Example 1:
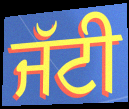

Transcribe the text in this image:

ਜੱਟੀ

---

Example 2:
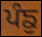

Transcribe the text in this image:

ਪੰਙੁ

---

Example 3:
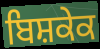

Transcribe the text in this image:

ਬਿਸ਼ਕੇਕ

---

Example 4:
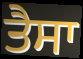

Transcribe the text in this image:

ਤੈਸਾ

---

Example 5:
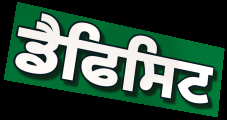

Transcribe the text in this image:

ਡੈਫਿਸਿਟ